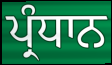
ਪ੍ਰੰਧਾਨ